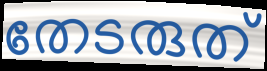
തേടരുത്